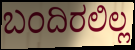
ಬಂದಿರಲಿಲ್ಲ